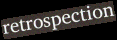
retrospection